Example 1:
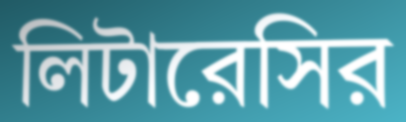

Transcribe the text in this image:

লিটারেসির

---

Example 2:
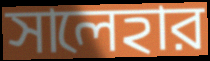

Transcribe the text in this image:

সালেহার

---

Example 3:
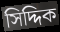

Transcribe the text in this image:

সিদ্দিক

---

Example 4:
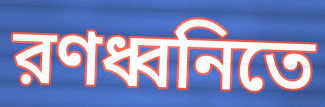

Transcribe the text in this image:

রণধ্বনিতে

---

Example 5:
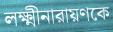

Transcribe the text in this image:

লক্ষ্মীনারায়ণকে